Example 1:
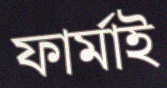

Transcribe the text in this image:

ফাৰ্মাই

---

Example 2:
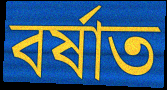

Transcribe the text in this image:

বৰ্ষাত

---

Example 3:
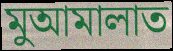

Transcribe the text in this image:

মুআমালাত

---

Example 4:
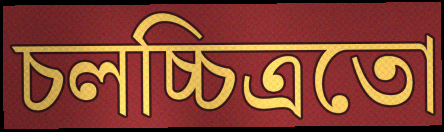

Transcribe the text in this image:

চলচ্চিত্ৰতো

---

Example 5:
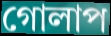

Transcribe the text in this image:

গোলাপ